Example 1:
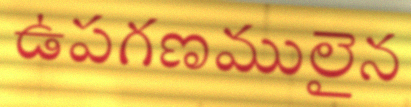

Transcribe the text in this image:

ఉపగణములైన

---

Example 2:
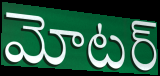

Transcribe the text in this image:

మోటర్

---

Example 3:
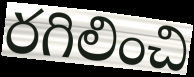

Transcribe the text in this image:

రగిలించి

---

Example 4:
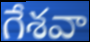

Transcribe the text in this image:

గేశవా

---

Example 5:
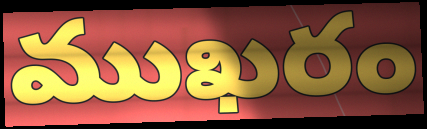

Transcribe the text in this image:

ముఖరం